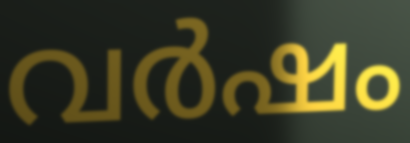
വർഷം